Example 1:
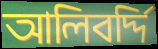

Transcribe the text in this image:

আলিবর্দ্দি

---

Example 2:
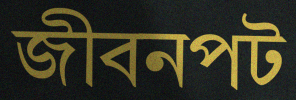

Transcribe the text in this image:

জীবনপট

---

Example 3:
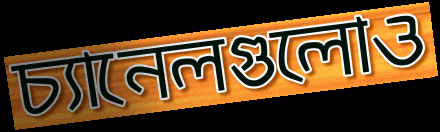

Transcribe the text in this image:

চ্যানেলগুলোও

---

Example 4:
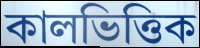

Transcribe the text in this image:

কালভিত্তিক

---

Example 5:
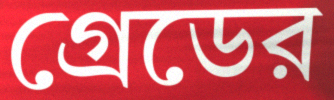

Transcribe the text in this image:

গ্রেডের